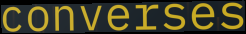
converses